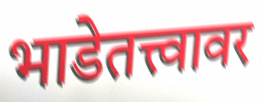
भाडेतत्त्वावर